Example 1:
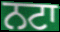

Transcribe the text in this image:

ਨਟਾ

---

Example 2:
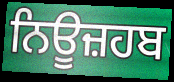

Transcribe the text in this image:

ਨਿਊਜ਼ਹਬ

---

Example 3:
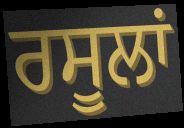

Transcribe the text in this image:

ਰਸੂਲਾਂ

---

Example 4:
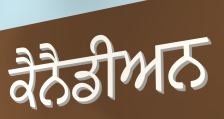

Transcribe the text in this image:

ਕੈਨੈਡੀਅਨ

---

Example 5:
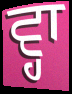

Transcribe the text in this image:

ਵ੍ਹਾ